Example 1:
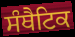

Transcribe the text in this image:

ਸੰਥੈਟਿਕ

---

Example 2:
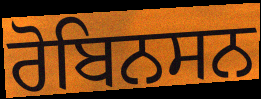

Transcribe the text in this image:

ਰੋਬਿਨਸਨ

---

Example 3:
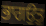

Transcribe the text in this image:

ਭਾਗਉਤੁ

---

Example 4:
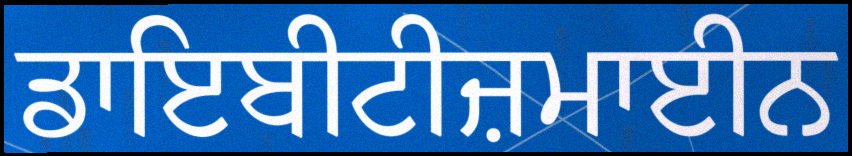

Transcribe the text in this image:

ਡਾਇਬੀਟੀਜ਼ਮਾਈਨ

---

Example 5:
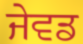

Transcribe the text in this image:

ਜੇਵਡ